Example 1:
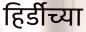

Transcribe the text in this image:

हिर्डीच्या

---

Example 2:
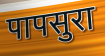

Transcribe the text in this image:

पापसुरा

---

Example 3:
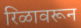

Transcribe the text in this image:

रिळावरून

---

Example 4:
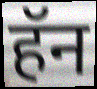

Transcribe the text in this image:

हॅन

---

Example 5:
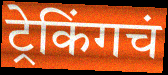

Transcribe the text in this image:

ट्रेकिंगचं